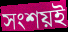
সংশয়ই